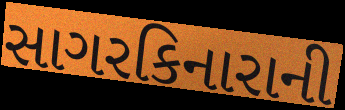
સાગરકિનારાની